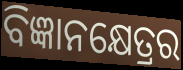
ବିଜ୍ଞାନକ୍ଷେତ୍ରର